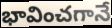
భావించగానే